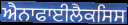
ਐਨਾਫਾਈਲੈਕਸਿਸ